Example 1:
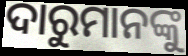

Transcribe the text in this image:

ଦାରୁମାନଙ୍କୁ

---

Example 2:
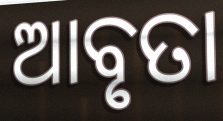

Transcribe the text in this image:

ଆବୃତା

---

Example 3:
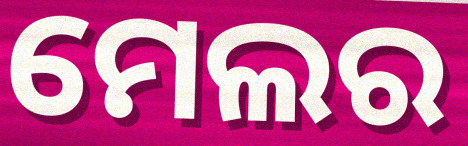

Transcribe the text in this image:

ମେଲର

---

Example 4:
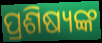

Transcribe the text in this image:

ପ୍ରଶିଷ୍ୟଙ୍କ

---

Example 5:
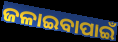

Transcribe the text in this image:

ଜଳାଇବାପାଇଁ